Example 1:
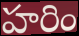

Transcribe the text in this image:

హరిం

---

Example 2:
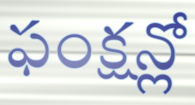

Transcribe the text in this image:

ఫంక్షన్లో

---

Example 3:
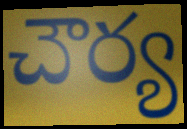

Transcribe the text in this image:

చౌర్య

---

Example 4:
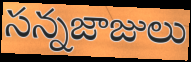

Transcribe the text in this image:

సన్నజాజులు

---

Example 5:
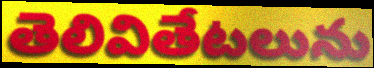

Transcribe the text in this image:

తెలివితేటలును